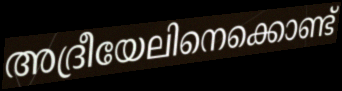
അദ്രീയേലിനെക്കൊണ്ട്